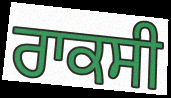
ਰਾਕਸੀ